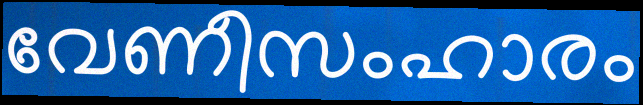
വേണീസംഹാരം